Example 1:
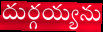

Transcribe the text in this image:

దుర్గయ్యను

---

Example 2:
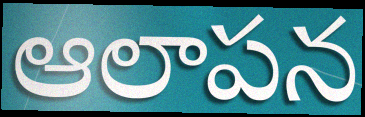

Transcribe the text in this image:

ఆలాపన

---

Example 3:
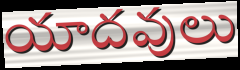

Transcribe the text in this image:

యాదవులు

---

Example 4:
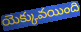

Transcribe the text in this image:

యెక్కువయింది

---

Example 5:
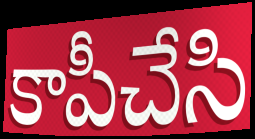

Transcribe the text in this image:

కాపీచేసి